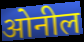
ओनील